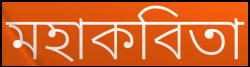
মহাকবিতা